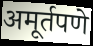
अमूर्तपणे